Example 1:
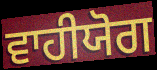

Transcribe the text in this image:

ਵਾਹੀਯੋਗ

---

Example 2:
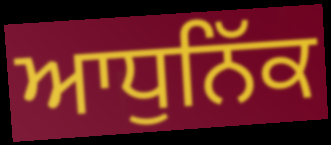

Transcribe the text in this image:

ਆਧੁਨਿੱਕ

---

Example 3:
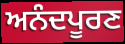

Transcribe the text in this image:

ਅਨੰਦਪੂਰਣ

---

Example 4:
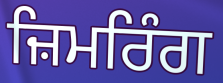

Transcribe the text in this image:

ਜ਼ਿਮਰਿੰਗ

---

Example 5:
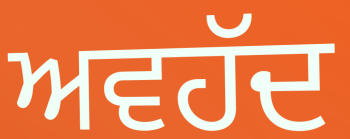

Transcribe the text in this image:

ਅਵਹੱਦ